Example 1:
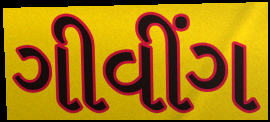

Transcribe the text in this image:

ગીવીંગ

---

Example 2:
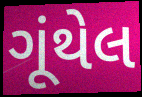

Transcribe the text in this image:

ગૂંથેલ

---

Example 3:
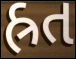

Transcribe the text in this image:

હ્રત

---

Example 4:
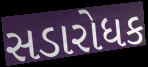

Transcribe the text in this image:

સડારોધક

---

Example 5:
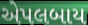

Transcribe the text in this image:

એપલબાય